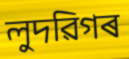
লুদৱিগৰ